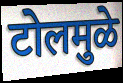
टोलमुळे